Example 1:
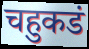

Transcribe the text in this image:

चहुकडं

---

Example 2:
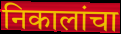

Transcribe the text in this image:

निकालांचा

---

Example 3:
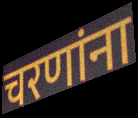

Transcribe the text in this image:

चरणांना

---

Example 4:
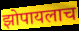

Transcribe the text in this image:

झोपायलाच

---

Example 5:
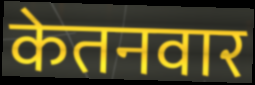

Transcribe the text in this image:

केतनवार